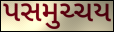
પસમુચ્ચય